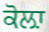
ਕੋਲ਼ਾ